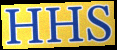
HHS